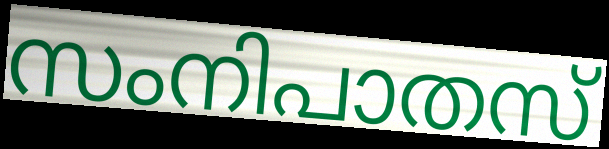
സംനിപാതസ്